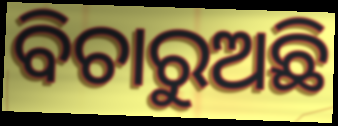
ବିଚାରୁଅଛି